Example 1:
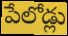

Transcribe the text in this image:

పేలోడ్లు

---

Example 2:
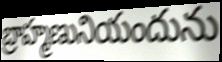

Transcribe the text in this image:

బ్రాహ్మణునియందును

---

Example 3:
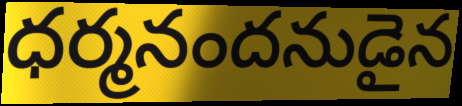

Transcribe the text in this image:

ధర్మనందనుడైన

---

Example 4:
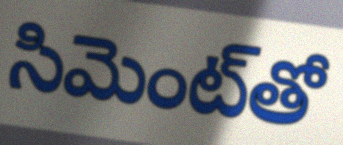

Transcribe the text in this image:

సిమెంట్‌తో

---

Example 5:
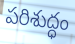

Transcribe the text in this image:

పరిశుద్ధం